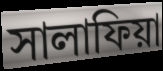
সালাফিয়া